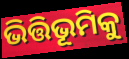
ଭିତ୍ତିଭୂମିକୁ